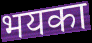
भयका